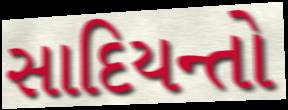
સાદિયન્તો